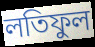
লতিফুল